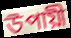
উপায়ী